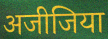
अजीजिया